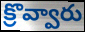
క్రొవ్వారు